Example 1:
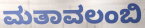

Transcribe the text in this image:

ಮತಾವಲಂಬಿ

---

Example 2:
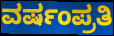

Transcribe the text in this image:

ವರ್ಷಂಪ್ರತಿ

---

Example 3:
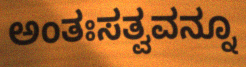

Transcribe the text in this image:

ಅಂತಃಸತ್ವವನ್ನೂ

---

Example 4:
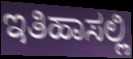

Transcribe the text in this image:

ಇತಿಹಾಸಲ್ಲಿ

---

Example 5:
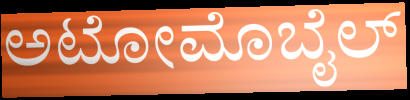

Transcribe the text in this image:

ಅಟೋಮೊಬೈಲ್